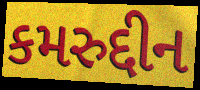
કમરુદ્દીન